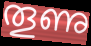
തൂണു